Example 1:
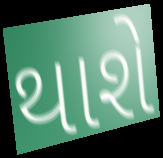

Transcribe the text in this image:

થાશે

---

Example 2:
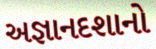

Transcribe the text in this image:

અજ્ઞાનદશાનો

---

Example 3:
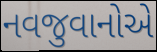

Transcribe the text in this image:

નવજુવાનોએ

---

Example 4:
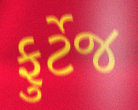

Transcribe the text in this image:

ફુર્ટેજ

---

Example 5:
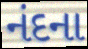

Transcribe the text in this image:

નંદના